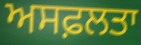
ਅਸਫ਼ਲਤਾ